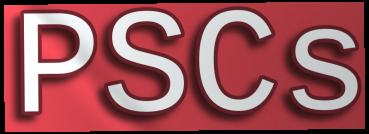
PSCs